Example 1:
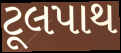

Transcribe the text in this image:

ટૂલપાથ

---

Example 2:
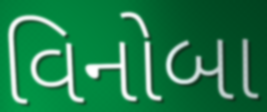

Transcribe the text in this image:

વિનોબા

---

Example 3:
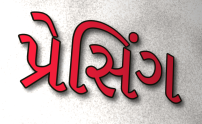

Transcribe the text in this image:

પ્રેસિંગ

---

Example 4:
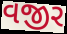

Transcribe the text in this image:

વજીર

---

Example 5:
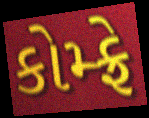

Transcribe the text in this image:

કોમ્ફ્રે